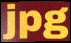
jpg